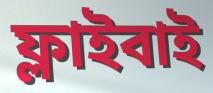
ফ্লাইবাই